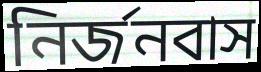
নির্জনবাস